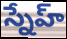
స్నేహ్